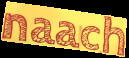
naach